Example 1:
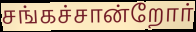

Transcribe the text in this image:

சங்கச்சான்றோர்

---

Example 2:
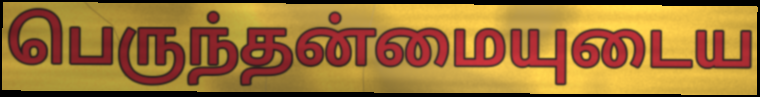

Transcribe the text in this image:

பெருந்தன்மையுடைய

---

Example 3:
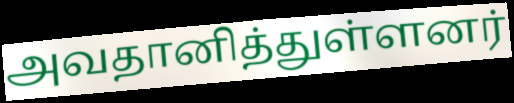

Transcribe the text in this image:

அவதானித்துள்ளனர்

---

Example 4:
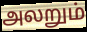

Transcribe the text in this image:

அலறும்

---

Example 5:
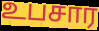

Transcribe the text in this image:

உபசார